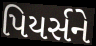
પિયર્સને